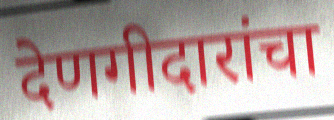
देणगीदारांचा